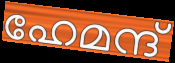
ഹേമന്ദ്